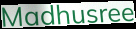
Madhusree